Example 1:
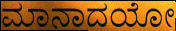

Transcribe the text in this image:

ಮಾನಾದಯೋ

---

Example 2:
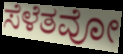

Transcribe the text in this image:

ಸೆಳೆತವೋ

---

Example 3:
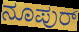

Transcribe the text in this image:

ನೂಪುರ್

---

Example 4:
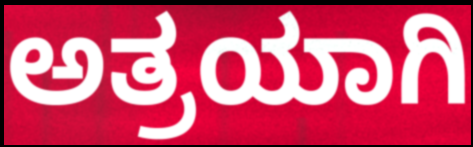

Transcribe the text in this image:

ಅತ್ರಯಾಗಿ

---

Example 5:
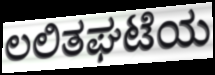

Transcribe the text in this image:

ಲಲಿತಘಟೆಯ